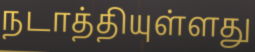
நடாத்தியுள்ளது